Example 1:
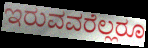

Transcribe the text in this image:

ಇರುವವರೆಲ್ಲರೂ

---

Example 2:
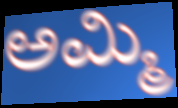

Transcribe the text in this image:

ಅಮ್ಮಿ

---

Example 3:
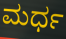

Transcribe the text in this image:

ಮರ್ಧ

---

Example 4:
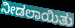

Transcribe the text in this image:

ನೀಡಲಾಯಿತು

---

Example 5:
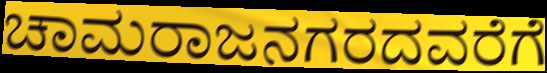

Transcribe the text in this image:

ಚಾಮರಾಜನಗರದವರೆಗೆ